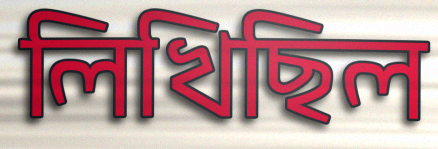
লিখিছিল